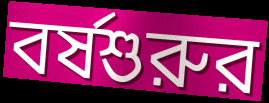
বর্ষশুরুর